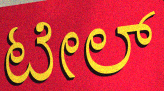
ಟೇಲ್